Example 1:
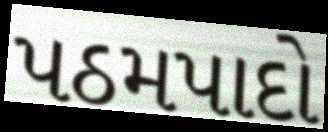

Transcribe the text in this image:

પઠમપાદો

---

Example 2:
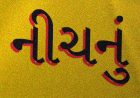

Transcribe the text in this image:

નીચનું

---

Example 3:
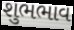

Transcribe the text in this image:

શુભભાવ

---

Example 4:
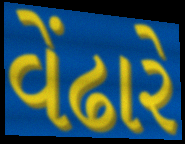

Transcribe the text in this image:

વેંઢારે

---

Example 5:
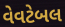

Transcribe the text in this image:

વેવટેબલ